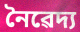
নৈৱেদ্য